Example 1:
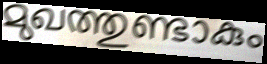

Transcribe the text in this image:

മുഖത്തുണ്ടാകും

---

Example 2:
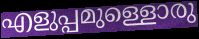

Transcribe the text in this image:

എളുപ്പമുള്ളൊരു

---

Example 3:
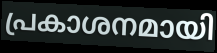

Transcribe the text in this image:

പ്രകാശനമായി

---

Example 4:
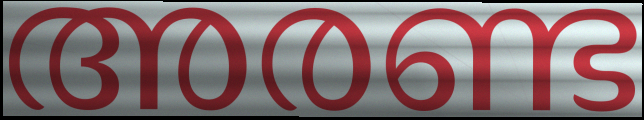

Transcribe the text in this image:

അരണ്ട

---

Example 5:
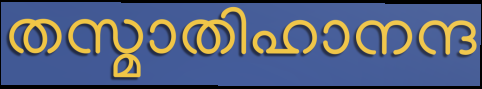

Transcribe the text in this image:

തസ്മാതിഹാനന്ദ